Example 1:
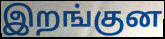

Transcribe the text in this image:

இறங்குன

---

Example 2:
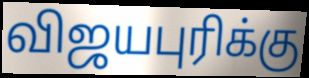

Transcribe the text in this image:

விஜயபுரிக்கு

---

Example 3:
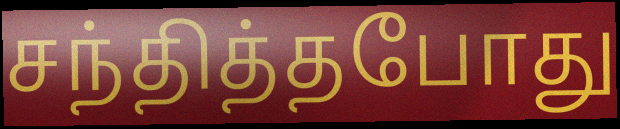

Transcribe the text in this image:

சந்தித்தபோது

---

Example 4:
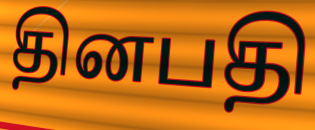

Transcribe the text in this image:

தினபதி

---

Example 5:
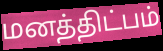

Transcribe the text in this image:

மனத்திட்பம்